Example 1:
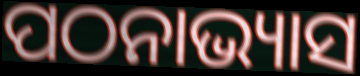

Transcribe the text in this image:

ପଠନାଭ୍ୟାସ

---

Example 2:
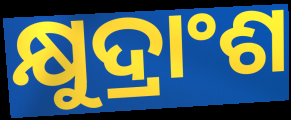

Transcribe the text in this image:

କ୍ଷୁଦ୍ରାଂଶ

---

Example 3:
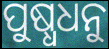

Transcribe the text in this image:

ପୁଷ୍ଧଧନୁ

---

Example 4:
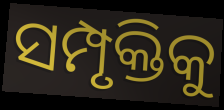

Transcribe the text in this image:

ସମ୍ପୃକ୍ତିକୁ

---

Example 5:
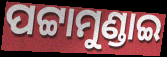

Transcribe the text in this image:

ପଟ୍ଟାମୁଣ୍ଡାଇ